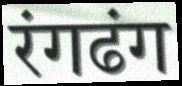
रंगढंग